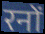
रनों